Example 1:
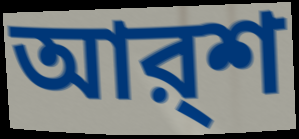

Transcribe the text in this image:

আর্‌শ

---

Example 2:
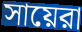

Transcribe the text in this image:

সায়েরা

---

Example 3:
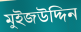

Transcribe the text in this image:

মুইজউদ্দিন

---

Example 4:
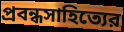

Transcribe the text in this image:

প্রবন্ধসাহিত্যের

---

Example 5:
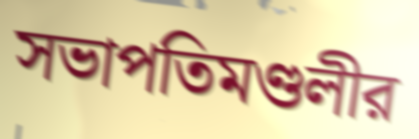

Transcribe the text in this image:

সভাপতিমণ্ডলীর